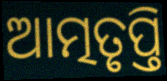
ଆତ୍ମତୃପ୍ତି